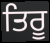
ਤਿਰੂ